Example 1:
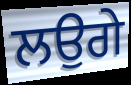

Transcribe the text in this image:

ਲਉਗੇ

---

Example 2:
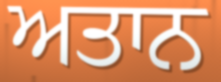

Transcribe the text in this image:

ਅਤਾਨ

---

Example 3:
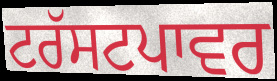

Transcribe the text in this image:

ਟਰੱਸਟਪਾਵਰ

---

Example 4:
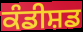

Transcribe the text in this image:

ਕੰਡੀਸ਼ਡ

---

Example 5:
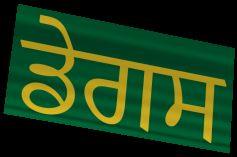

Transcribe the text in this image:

ਡੇਗਸ